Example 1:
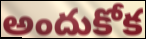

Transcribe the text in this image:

అందుకోక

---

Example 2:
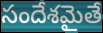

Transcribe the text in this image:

సందేశమైతే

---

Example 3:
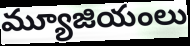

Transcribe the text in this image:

మ్యూజియంలు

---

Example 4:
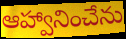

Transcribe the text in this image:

ఆహ్వానించేను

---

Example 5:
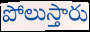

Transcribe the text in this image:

పోలుస్తారు